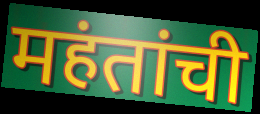
महंतांची